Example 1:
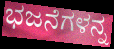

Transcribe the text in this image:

ಭಜನೆಗಳನ್ನ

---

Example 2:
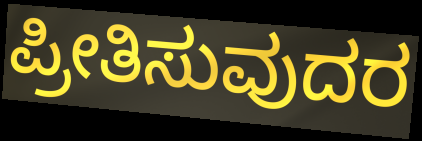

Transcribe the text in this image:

ಪ್ರೀತಿಸುವುದರ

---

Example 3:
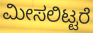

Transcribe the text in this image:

ಮೀಸಲಿಟ್ಟರೆ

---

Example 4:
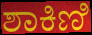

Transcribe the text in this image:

ಶಾಕಿಣಿ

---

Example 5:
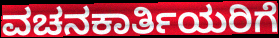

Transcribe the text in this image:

ವಚನಕಾರ್ತಿಯರಿಗೆ